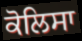
ਕੋਲਿਸਾ